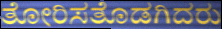
ತೋರಿಸತೊಡಗಿದರು